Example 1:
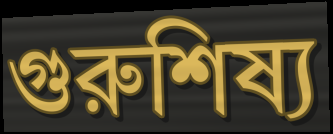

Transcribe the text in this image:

গুরুশিষ্য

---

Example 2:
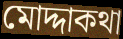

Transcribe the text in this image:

মোদ্দাকথা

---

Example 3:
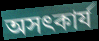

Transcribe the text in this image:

অসৎকার্য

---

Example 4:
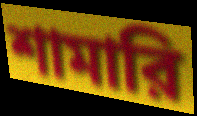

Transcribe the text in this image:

শামারি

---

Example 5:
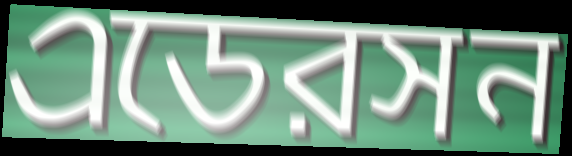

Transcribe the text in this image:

এডেরসন